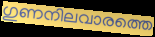
ഗുണനിലവാരത്തെ